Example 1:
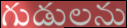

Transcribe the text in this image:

గుడులను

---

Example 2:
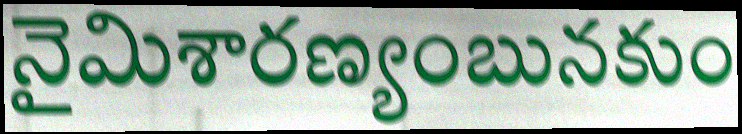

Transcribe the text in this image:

నైమిశారణ్యంబునకుం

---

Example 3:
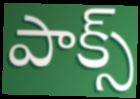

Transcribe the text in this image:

పాక్స్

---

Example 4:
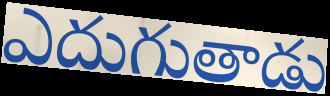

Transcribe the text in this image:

ఎదుగుతాడు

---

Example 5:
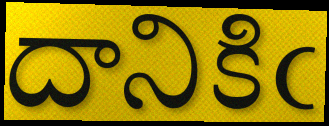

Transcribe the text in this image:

దానికిఁ